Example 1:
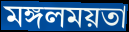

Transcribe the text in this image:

মঙ্গলময়তা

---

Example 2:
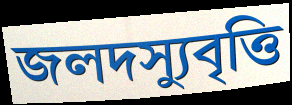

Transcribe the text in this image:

জলদস্যুবৃত্তি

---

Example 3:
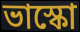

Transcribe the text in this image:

ভাস্কো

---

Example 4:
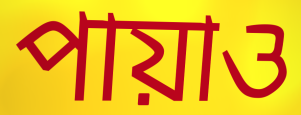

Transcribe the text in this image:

পায়াও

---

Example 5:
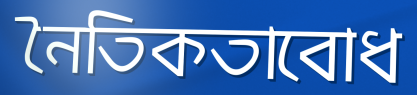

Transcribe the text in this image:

নৈতিকতাবোধ